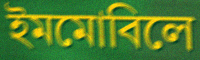
ইমমোবিলে